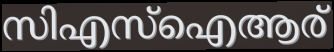
സിഎസ്ഐആര്